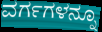
ವರ್ಗಗಳನ್ನೂ